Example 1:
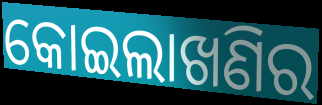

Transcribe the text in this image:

କୋଇଲାଖଣିର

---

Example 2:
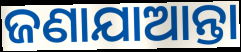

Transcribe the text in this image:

ଜଣାଯାଆନ୍ତା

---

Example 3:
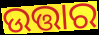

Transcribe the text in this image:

ଉତ୍ତାର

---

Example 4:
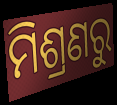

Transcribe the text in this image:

ମିଶ୍ରଣରୁ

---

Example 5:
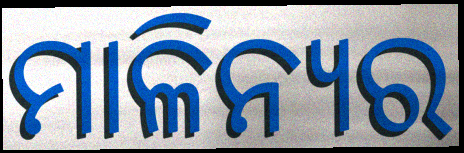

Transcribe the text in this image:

ମାଳିନ୍ୟର